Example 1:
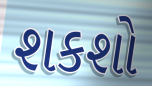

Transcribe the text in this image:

શકશો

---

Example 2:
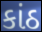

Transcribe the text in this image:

કાંઠ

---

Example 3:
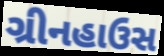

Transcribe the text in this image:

ગ્રીનહાઉસ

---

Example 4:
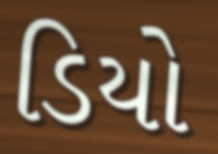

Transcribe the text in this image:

ડિયો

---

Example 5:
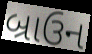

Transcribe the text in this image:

બ્રાઉન